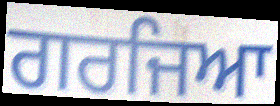
ਗਰਜਿਆ